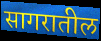
सागरातील